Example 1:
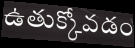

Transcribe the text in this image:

ఉతుక్కోవడం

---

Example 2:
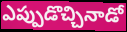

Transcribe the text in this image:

ఎప్పుడొచ్చినాడో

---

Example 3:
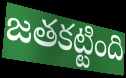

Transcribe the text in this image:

జతకట్టింది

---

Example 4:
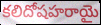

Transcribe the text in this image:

కలిదోషహరాయై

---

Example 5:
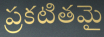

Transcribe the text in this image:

ప్రకటితమై